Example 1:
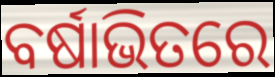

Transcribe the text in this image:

ବର୍ଷାଭିତରେ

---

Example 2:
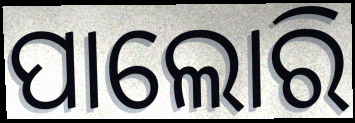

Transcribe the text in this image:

ପାଲୋରି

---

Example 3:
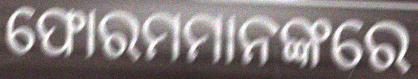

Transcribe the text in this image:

ଫୋରମମାନଙ୍କରେ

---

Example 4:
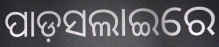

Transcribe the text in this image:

ପାଡ଼ସଲାଇରେ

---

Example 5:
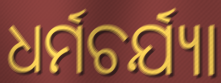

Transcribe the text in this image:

ଧର୍ମଚର୍ଯ୍ୟା